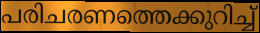
പരിചരണത്തെക്കുറിച്ച്